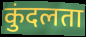
कुंदलता